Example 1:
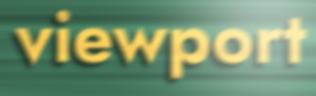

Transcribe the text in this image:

viewport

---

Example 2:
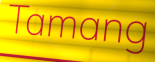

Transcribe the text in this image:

Tamang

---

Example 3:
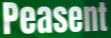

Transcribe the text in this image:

Peasent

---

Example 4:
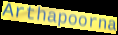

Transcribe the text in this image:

Arthapoorna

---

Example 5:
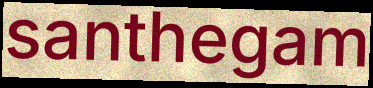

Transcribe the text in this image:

santhegam